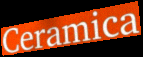
Ceramica